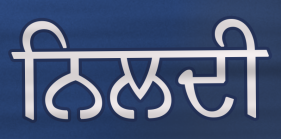
ਨਿਲਦੀ